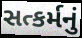
સત્કર્મનું